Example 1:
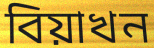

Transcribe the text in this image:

বিয়াখন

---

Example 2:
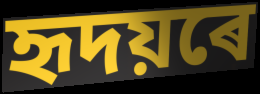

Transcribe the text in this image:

হৃদয়ৰে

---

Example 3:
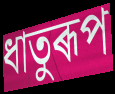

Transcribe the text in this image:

ধাতুৰূপ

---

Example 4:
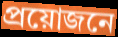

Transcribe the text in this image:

প্ৰয়োজনে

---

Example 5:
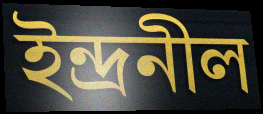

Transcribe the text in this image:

ইন্দ্ৰনীল